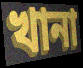
খানা